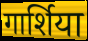
गार्शिया